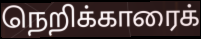
நெறிக்காரைக்